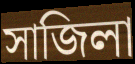
সাজিলা